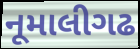
નૂમાલીગઢ